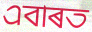
এবাৰত